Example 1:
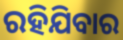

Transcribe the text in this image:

ରହିଯିବାର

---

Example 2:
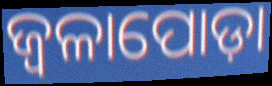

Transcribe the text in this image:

ଜ୍ୱଳାପୋଡ଼ା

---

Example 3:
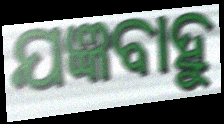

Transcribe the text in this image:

ଯଜ୍ଞବାହୁ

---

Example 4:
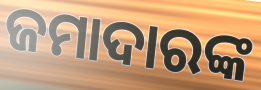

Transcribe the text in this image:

ଜମାଦାରଙ୍କ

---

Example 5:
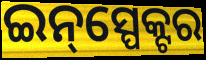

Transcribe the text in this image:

ଇନ୍‌ସ୍ପେକ୍ଟର